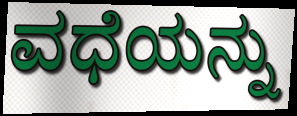
ವಧೆಯನ್ನು